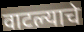
वाटल्याचे